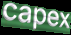
capex